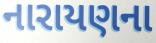
નારાયણના